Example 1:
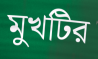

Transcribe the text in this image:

মুখটির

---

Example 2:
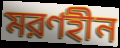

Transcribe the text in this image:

মরণহীন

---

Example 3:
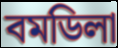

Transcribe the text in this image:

বমডিলা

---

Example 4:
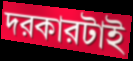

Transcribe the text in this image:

দরকারটাই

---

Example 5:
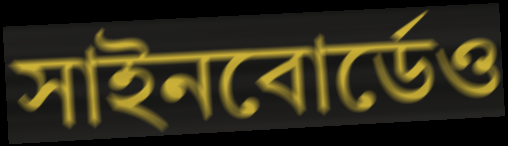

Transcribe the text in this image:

সাইনবোর্ডেও